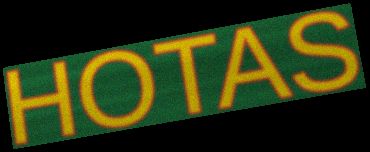
HOTAS